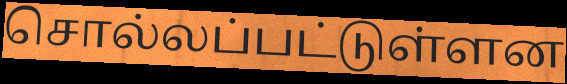
சொல்லப்பட்டுள்ளன